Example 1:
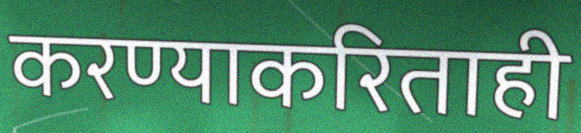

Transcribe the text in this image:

करण्याकरिताही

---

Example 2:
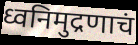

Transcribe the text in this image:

ध्वनिमुद्रणाचं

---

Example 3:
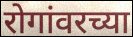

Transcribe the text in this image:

रोगांवरच्या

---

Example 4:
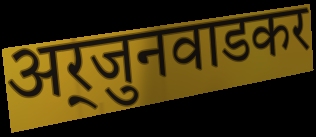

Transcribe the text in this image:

अर्जुनवाडकर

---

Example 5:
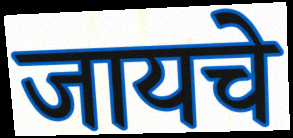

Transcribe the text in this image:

जायचे